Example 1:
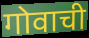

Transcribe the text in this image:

गोवाची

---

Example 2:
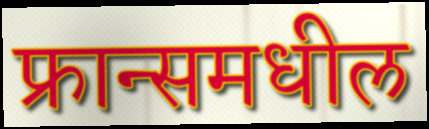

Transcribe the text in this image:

फ्रान्समधील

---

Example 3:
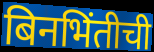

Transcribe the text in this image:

बिनभिंतीची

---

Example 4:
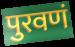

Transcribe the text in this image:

पुरवणं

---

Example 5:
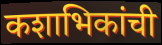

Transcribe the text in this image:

कशाभिकांची